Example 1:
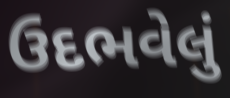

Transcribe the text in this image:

ઉદભવેલું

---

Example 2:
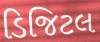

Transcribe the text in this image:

ડિજિટલ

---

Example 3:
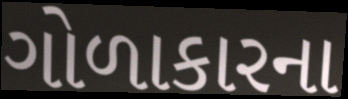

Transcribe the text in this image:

ગોળાકારના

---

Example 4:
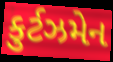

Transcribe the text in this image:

કુર્ટઝમેન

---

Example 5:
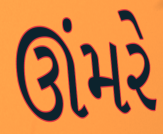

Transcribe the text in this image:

ઊંમરે